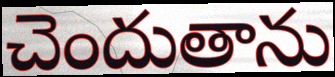
చెందుతాను